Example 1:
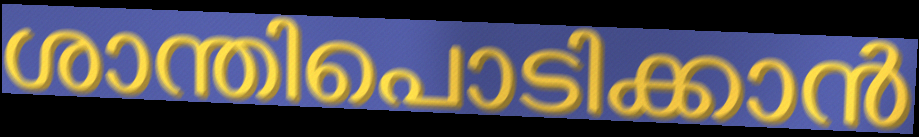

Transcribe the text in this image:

ശാന്തിപൊടിക്കാൻ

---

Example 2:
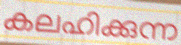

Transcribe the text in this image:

കലഹിക്കുന്ന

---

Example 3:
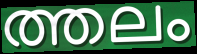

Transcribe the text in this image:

ത്തലം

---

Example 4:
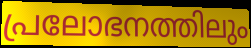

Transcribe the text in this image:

പ്രലോഭനത്തിലും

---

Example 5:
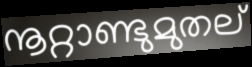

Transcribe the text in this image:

നൂറ്റാണ്ടുമുതല്